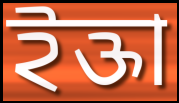
ইক্তা